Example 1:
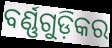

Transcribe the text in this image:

ବର୍ଣ୍ଣଗୁଡ଼ିକର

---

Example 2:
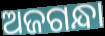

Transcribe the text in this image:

ଅଜଗନ୍ଧା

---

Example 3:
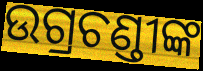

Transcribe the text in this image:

ଉଗ୍ରଚଣ୍ଡୀଙ୍କ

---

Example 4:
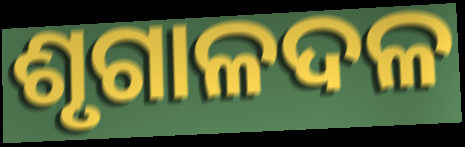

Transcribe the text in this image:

ଶୃଗାଳଦଳ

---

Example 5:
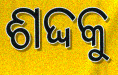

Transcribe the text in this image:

ଶଦ୍ଦକୁ